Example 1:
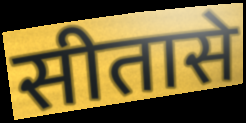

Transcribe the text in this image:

सीतासे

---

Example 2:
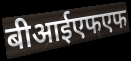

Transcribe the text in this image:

बीआईएफएफ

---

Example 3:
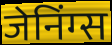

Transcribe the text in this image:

जेनिंग्स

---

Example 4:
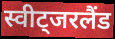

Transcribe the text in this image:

स्वीट्जरलैंड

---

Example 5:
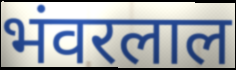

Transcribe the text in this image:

भंवरलाल